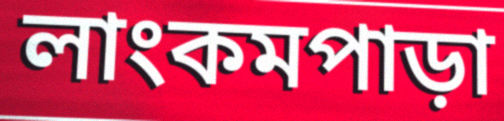
লাংকমপাড়া